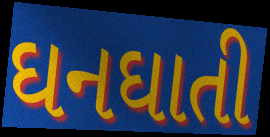
ઘનઘાતી